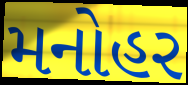
મનોહર